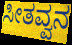
ಸೀತವ್ವನ